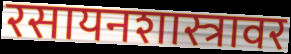
रसायनशास्त्रावर